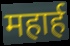
महार्ह